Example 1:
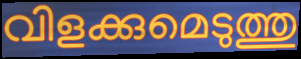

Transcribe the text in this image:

വിളക്കുമെടുത്തു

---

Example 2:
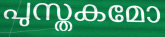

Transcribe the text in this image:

പുസ്തകമോ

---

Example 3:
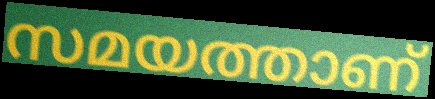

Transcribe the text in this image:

സമയത്താണ്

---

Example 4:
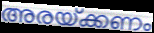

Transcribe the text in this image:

അരയ്‌ക്കണം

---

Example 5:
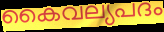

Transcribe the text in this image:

കൈവല്യപദം